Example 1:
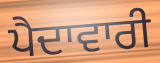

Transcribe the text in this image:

ਪੈਦਾਵਾਰੀ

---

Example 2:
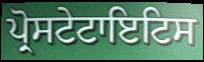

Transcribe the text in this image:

ਪ੍ਰੋਸਟੇਟਾਇਟਿਸ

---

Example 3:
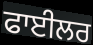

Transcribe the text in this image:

ਫਾਈਲਰ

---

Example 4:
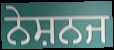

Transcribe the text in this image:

ਨੇਸ਼ਨਜ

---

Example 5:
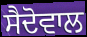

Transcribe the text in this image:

ਸੈਦੋਵਾਲ